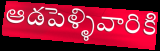
ఆడపెళ్ళివారికి